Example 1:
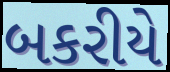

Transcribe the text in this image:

બકરીયે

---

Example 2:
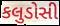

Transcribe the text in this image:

કલુડોસી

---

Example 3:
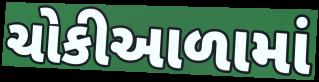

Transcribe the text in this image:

ચોકીઆળામાં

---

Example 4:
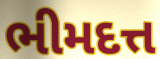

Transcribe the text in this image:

ભીમદત્ત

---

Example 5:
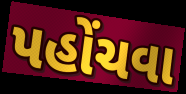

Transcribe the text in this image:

પહોંચવા